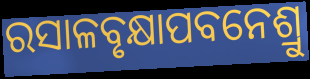
ରସାଳବୃକ୍ଷାପବନେଶ୍ରୁ